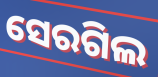
ସେରଗିଲ